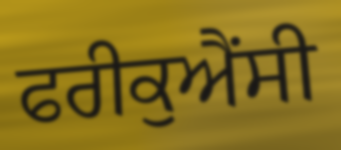
ਫਰੀਕੁਐਂਸੀ